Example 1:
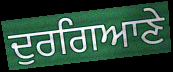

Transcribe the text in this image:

ਦੁਰਗਿਆਣੇ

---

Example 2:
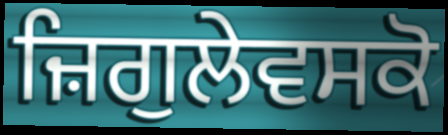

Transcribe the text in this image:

ਜ਼ਿਗੁਲੇਵਸਕੋ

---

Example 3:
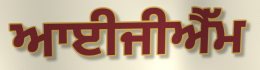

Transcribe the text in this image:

ਆਈਜੀਐੱਮ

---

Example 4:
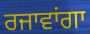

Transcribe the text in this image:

ਰਜਾਵਾਂਗਾ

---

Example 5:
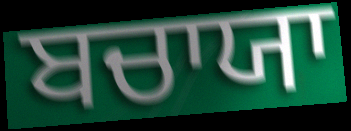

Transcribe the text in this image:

ਬਚਾਯਾ